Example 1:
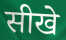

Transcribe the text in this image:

सीखे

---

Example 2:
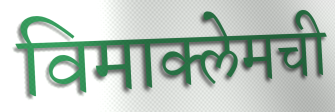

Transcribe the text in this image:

विमाक्लेमची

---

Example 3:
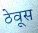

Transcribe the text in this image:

ठेवूस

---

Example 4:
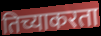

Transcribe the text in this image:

तिच्याकरता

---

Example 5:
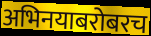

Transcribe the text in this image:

अभिनयाबरोबरच